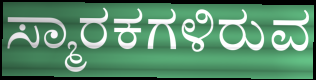
ಸ್ಮಾರಕಗಳಿರುವ